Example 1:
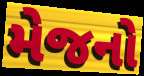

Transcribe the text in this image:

મેજનો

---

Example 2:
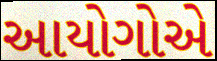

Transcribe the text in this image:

આયોગોએ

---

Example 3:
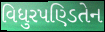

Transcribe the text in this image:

વિધુરપણ્ડિતેન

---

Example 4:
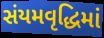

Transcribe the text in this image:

સંયમવૃદ્ધિમાં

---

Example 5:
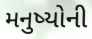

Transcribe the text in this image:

મનુષ્યોની